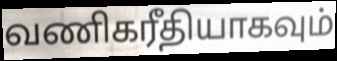
வணிகரீதியாகவும்